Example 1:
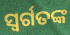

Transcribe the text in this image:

ସ୍ୱର୍ଗତଙ୍କ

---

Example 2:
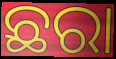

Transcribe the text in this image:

ଛରା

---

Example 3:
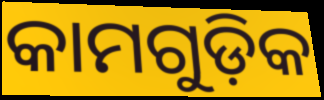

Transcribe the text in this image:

କାମଗୁଡ଼ିକ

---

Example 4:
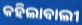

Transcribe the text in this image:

କହିଲାବାଲୀ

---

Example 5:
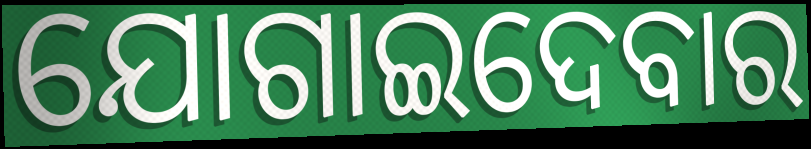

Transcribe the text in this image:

ଯୋଗାଇଦେବାର